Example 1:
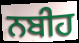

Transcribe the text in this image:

ਨਬੀਹ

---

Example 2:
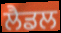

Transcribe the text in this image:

ਲੈਡਲ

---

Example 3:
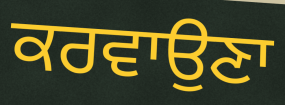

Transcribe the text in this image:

ਕਰਵਾਉਣਾ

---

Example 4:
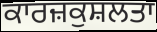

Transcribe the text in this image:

ਕਾਰਜ਼ਕੁਸ਼ਲਤਾ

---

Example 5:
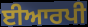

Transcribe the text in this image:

ਈਆਰਪੀ